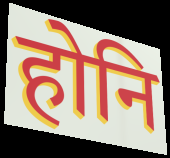
होनि